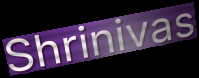
Shrinivas